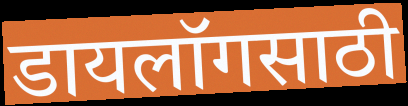
डायलॉगसाठी